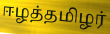
ஈழத்தமிழர்